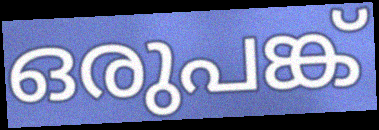
ഒരുപങ്ക്